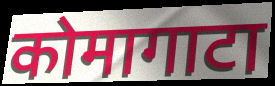
कोमागाटा